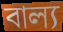
বাল্য